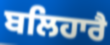
ਬਲਿਹਾਰੈ